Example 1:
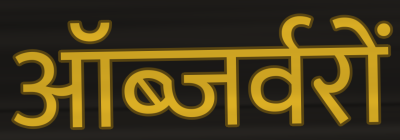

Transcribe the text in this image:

ऑब्जर्वरों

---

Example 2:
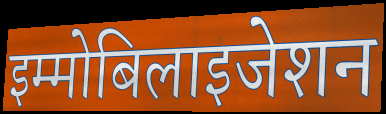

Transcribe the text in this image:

इम्मोबिलाइजेशन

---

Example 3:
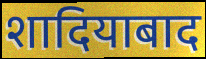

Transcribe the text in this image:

शादियाबाद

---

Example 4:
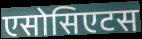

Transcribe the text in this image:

एसोसिएटस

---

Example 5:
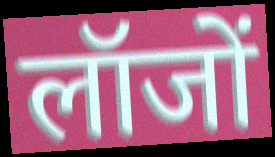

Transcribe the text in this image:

लॉजों